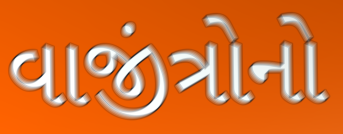
વાજીંત્રોનો